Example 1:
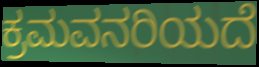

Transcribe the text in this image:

ಕ್ರಮವನರಿಯದೆ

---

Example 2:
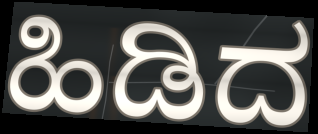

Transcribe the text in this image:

ಹಿಡಿದ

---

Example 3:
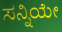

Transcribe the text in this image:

ಸನ್ನಿಯೇ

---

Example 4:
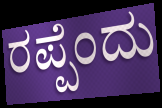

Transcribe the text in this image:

ರಪ್ಪೆಂದು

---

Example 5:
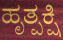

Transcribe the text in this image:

ಹೃತ್ಪಕ್ಷಿ